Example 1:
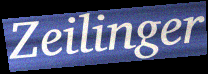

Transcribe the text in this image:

Zeilinger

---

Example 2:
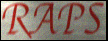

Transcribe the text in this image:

RAPS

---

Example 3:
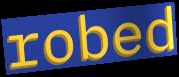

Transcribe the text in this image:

robed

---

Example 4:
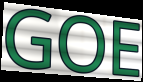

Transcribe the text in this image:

GOE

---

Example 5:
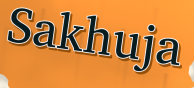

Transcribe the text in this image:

Sakhuja